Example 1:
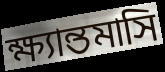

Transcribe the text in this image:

ক্ষ্যান্তমাসি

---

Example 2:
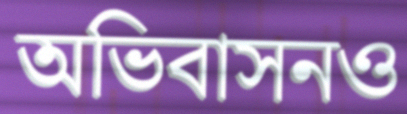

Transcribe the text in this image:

অভিবাসনও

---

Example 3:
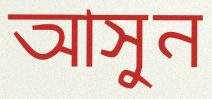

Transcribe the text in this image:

আসুন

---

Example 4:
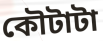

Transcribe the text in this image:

কৌটাটা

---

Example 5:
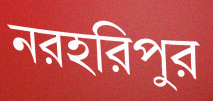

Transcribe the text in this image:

নরহরিপুর